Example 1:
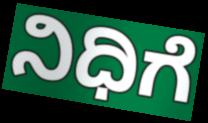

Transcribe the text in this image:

ನಿಧಿಗೆ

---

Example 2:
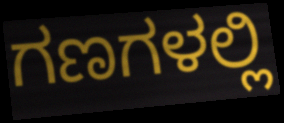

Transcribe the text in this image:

ಗಣಗಳಲ್ಲಿ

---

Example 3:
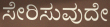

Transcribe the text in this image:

ಸೇರಿಸುವುದೇ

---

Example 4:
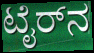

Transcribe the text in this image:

ಟೈರ್‌ನ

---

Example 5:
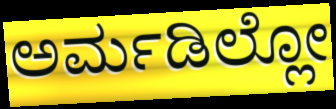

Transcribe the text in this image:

ಅರ್ಮಡಿಲ್ಲೋ